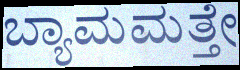
ಬ್ಯಾಮಮತ್ತೇ